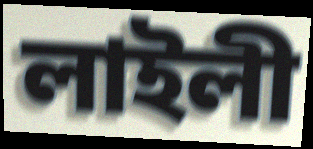
লাইলী